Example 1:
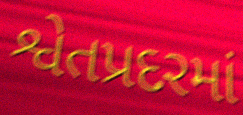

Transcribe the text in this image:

શ્વેતપ્રદરમાં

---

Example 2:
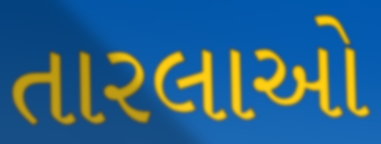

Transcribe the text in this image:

તારલાઓ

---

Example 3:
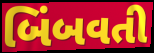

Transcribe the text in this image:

બિંબવતી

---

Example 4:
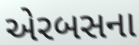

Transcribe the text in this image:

એરબસના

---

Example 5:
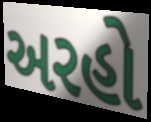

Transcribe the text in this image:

અરહો